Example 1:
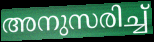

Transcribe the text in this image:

അനുസരിച്ച്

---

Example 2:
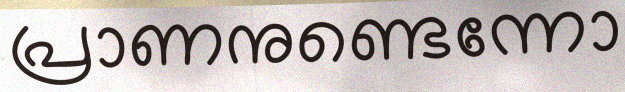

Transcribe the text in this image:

പ്രാണനുണ്ടെന്നോ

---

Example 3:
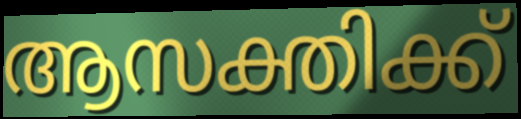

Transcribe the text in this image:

ആസക്തിക്ക്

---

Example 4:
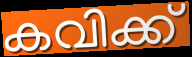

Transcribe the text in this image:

കവിക്ക്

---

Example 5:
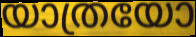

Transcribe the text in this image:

യാത്രയോ